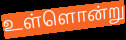
உள்ளொன்று